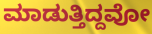
ಮಾಡುತ್ತಿದ್ದವೋ